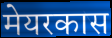
मेयरकास